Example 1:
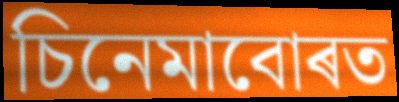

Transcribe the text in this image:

চিনেমাবোৰত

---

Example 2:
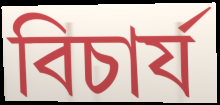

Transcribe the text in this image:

বিচাৰ্য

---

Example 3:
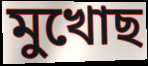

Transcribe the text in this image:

মুখোছ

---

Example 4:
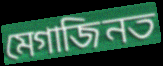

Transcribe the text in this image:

মেগাজিনত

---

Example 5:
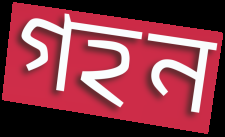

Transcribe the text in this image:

গহন